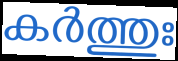
കർത്തുഃ